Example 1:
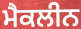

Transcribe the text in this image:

ਮੈਕਲੀਨ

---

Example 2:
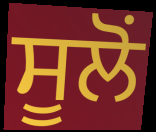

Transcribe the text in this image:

ਸੂਲੋਂ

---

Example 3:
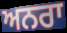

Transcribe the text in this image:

ਅਨਰਾ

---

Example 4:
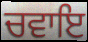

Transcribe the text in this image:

ਚਵਾਇ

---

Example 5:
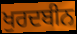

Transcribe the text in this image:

ਖੁਰਦਬੀਨ